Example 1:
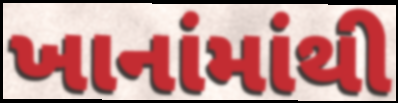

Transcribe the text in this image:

ખાનાંમાંથી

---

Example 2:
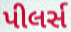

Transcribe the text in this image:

પીલર્સ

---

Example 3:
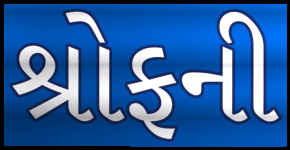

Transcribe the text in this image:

શ્રોફની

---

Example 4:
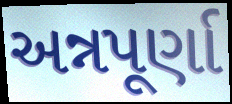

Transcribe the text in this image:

અન્નપૂર્ણા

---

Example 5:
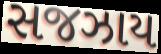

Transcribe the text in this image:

સજઝાય